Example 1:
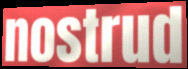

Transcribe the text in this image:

nostrud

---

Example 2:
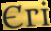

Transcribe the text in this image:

Eri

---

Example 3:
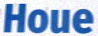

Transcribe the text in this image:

Houe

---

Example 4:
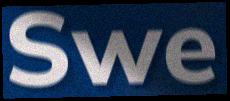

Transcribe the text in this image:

Swe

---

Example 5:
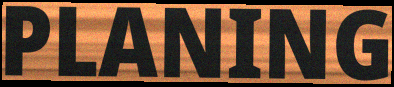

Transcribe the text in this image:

PLANING